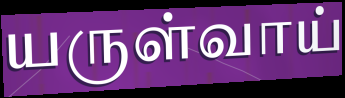
யருள்வாய்